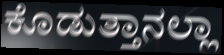
ಕೊಡುತ್ತಾನಲ್ಲಾ